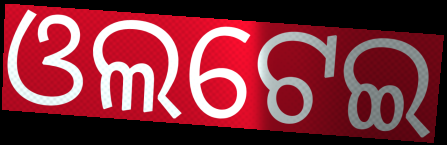
ଓଲଟେଇ